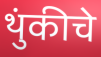
थुंकीचे